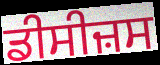
ਡੀਸੀਜ਼ਸ